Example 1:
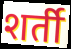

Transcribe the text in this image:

शर्ती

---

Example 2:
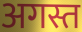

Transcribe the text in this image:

अगस्त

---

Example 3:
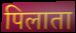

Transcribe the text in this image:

पिलाता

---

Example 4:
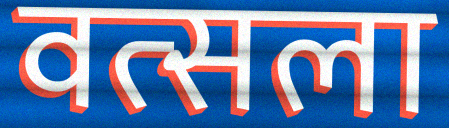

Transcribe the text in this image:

वत्‍सला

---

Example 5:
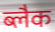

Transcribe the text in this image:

ब्लैक